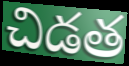
చిడత